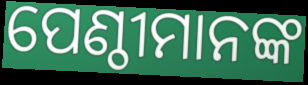
ପେଣ୍ଠୀମାନଙ୍କ